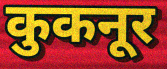
कुकनूर